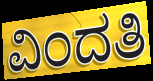
ವಿಂದತಿ